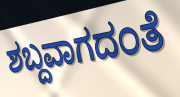
ಶಬ್ದವಾಗದಂತೆ